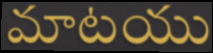
మాటయు